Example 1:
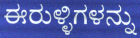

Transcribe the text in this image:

ಈರುಳ್ಳಿಗಳನ್ನು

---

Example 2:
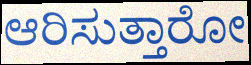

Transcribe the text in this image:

ಆರಿಸುತ್ತಾರೋ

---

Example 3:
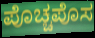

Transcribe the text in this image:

ಪೊಚ್ಚಪೊಸ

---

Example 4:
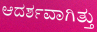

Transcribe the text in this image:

ಆದರ್ಶವಾಗಿತ್ತು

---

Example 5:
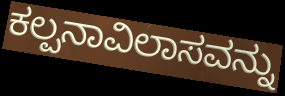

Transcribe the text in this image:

ಕಲ್ಪನಾವಿಲಾಸವನ್ನು